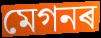
মেগনৰ